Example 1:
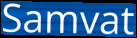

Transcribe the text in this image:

Samvat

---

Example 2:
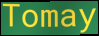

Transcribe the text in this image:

Tomay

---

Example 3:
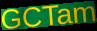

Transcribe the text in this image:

GCTam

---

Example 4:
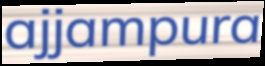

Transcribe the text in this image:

ajjampura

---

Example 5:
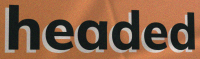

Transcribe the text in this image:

headed